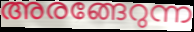
അരങ്ങേറുന്ന